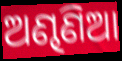
ଅଣ୍ଢଣିଆ